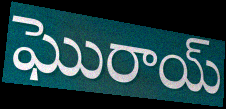
ఘొరాయ్